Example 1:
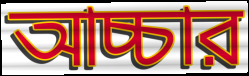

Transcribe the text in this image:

আচ্চার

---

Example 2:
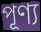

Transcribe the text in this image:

পূণ্য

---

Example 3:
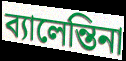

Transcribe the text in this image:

ব্যালেন্তিনা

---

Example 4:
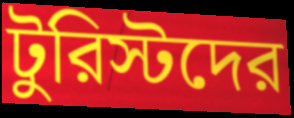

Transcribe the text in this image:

টুরিস্টদের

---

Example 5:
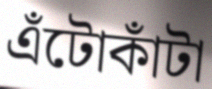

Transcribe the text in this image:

এঁটোকাঁটা